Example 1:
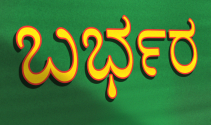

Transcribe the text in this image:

ಬರ್ಭರ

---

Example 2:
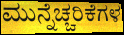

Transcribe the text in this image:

ಮುನ್ನೆಚ್ಚರಿಕೆಗಳ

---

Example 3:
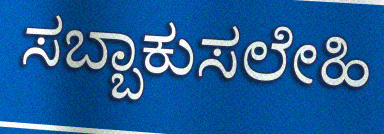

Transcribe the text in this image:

ಸಬ್ಬಾಕುಸಲೇಹಿ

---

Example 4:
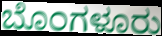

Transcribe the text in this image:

ಬೊಂಗಳೂರು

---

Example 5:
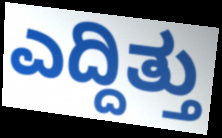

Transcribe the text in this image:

ಎದ್ದಿತ್ತು